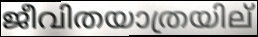
ജീവിതയാത്രയില്